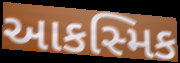
આકસ્મિક